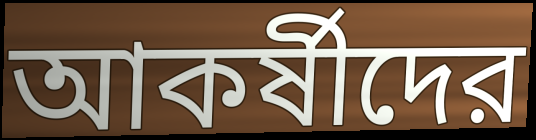
আকর্ষীদের